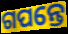
ଗପନ୍ତେ